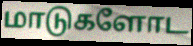
மாடுகளோட